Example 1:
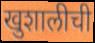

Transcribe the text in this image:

खुशालीची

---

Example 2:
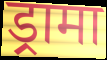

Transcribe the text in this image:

ड्रामा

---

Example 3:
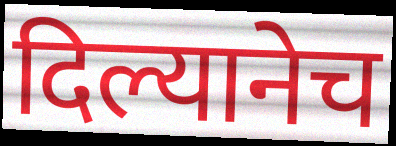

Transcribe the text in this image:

दिल्यानेच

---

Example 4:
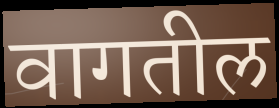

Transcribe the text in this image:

वागतील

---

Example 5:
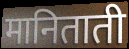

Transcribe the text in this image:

मानिताती